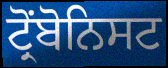
ਟ੍ਰੋਂਬੋਨਿਸਟ